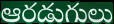
ఆరడుగులు